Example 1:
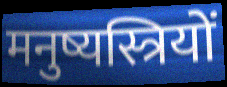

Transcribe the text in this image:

मनुष्यस्त्रियों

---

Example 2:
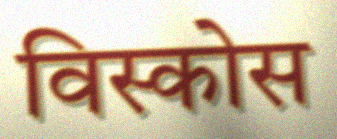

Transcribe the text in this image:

विस्कोस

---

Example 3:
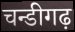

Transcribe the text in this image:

चन्डीगढ़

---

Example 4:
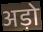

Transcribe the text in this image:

अड़ो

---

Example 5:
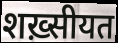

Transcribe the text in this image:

शख़्सीयत